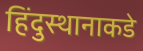
हिंदुस्थानाकडे